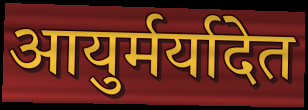
आयुर्मर्यादेत